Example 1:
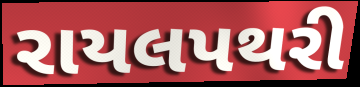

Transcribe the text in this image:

રાયલપથરી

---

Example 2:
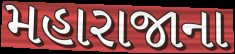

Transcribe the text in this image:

મહારાજાના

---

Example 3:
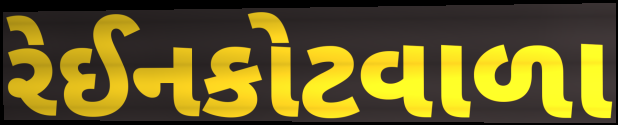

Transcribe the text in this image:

રેઈનકોટવાળા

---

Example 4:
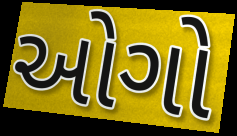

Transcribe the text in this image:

ઓગો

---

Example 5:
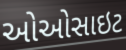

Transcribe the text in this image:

ઓઓસાઇટ